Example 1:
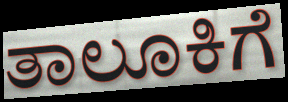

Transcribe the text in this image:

ತಾಲೂಕಿಗೆ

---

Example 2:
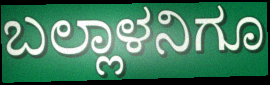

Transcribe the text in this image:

ಬಲ್ಲಾಳನಿಗೂ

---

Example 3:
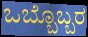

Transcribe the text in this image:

ಒಬ್ಬೊಬ್ಬರ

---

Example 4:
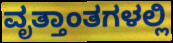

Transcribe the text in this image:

ವೃತ್ತಾಂತಗಳಲ್ಲಿ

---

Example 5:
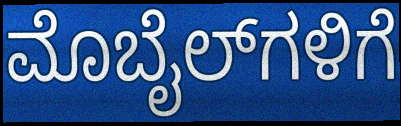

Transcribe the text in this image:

ಮೊಬೈಲ್‌ಗಳಿಗೆ